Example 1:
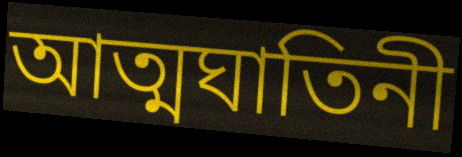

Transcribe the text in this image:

আত্মঘাতিনী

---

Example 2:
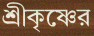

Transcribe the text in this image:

শ্রীকৃষ্ণের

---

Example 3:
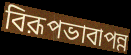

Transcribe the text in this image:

বিরূপভাবাপন্ন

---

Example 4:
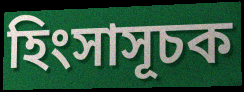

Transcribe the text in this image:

হিংসাসূচক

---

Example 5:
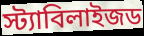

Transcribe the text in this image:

স্ট্যাবিলাইজড